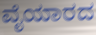
ವೈಯಾರದ